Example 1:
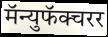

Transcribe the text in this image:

मॅन्युफॅक्चरर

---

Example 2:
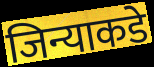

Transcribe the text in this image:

जिन्याकडे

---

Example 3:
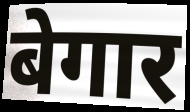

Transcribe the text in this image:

बेगार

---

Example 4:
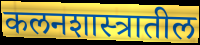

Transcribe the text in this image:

कलनशास्त्रातील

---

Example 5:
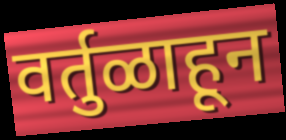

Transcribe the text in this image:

वर्तुळाहून